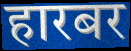
हारबर